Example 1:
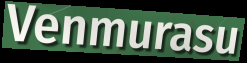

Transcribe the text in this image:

Venmurasu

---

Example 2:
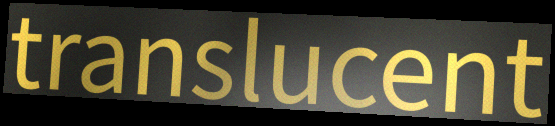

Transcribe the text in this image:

translucent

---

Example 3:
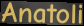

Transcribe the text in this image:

Anatoli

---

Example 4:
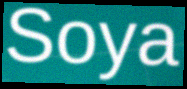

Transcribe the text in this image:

Soya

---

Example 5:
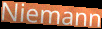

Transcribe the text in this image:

Niemann